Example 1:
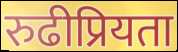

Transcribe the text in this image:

रुढीप्रियता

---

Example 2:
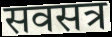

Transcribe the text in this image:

सवसत्र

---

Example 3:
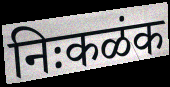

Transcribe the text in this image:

निःकळंक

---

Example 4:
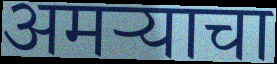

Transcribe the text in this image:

अमऱ्याचा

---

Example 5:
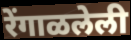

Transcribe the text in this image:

रेंगाळलेली